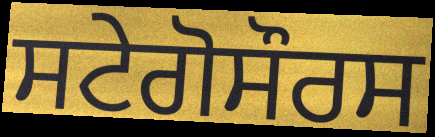
ਸਟੇਗੋਸੌਰਸ